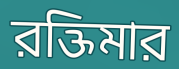
রক্তিমার